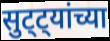
सुट्ट्यांच्या